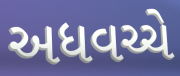
અધવચ્ચે